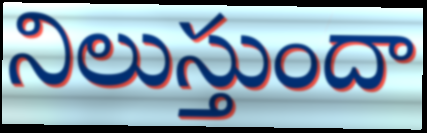
నిలుస్తుందా